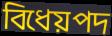
বিধেয়পদ